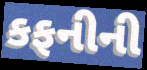
કફનીની